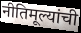
नीतिमूल्यांची